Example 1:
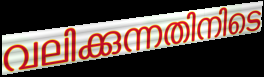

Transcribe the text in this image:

വലിക്കുന്നതിനിടെ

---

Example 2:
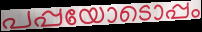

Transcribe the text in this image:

പപ്പയോടൊപ്പം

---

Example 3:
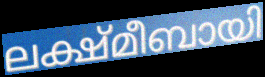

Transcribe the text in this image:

ലക്ഷ്മീബായി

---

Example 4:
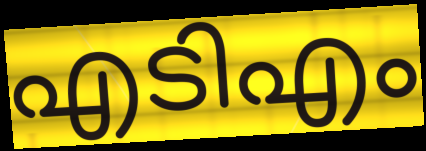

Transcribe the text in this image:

എടിഎം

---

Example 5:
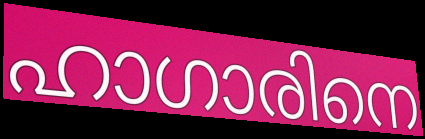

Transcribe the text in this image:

ഹാഗാരിനെ